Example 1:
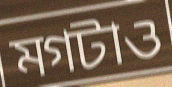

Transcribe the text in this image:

মগটাও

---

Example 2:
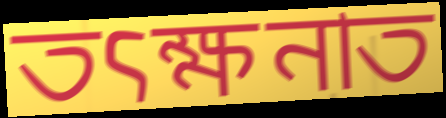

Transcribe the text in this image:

তৎক্ষনাত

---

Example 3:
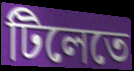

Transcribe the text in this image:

টিলেতে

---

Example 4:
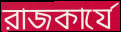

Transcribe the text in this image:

রাজকার্যে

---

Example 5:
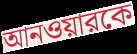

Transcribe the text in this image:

আনওয়ারকে